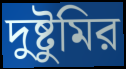
দুষ্টুমির